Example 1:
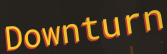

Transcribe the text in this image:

Downturn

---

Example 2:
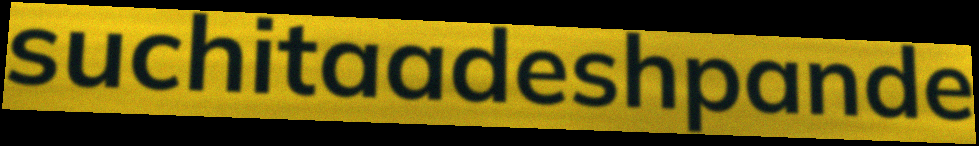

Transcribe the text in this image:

suchitaadeshpande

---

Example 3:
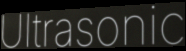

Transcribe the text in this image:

Ultrasonic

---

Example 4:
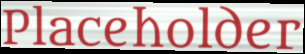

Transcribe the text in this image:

Placeholder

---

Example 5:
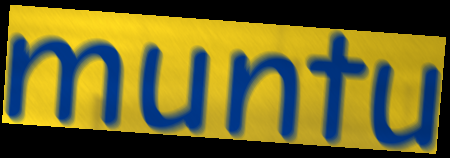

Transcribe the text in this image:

muntu